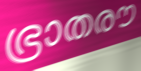
ഭ്രാതരൗ